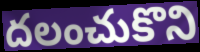
దలంచుకొని